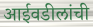
आईवडीलांची